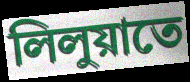
লিলুয়াতে